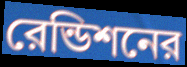
রেন্ডিশনের